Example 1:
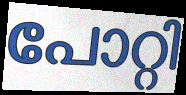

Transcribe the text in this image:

പോറ്റി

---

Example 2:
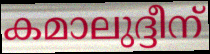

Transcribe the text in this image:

കമാലുദ്ദീന്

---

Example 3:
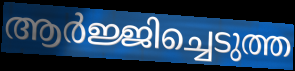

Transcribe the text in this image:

ആർജ്ജിച്ചെടുത്ത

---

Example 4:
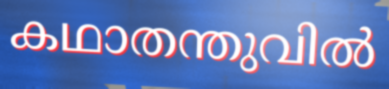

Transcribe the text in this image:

കഥാതന്തുവിൽ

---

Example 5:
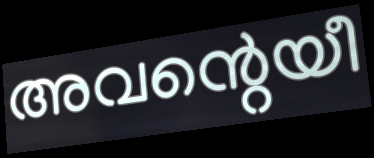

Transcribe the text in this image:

അവന്റെയീ